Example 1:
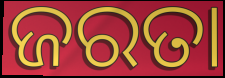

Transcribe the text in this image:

ଜରତା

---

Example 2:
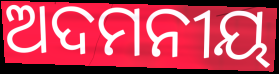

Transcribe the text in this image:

ଅଦମନୀୟ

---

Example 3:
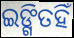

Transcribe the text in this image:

ଇଙ୍ଗିତହିଁ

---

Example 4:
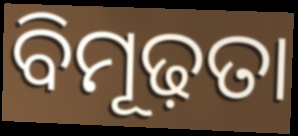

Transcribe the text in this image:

ବିମୂଢ଼ତା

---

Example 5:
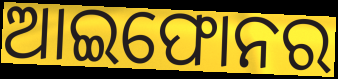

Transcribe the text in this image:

ଆଇଫୋନର